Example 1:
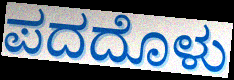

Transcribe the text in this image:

ಪದದೊಳು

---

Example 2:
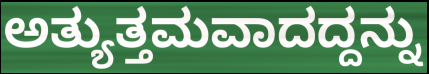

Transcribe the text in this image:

ಅತ್ಯುತ್ತಮವಾದದ್ದನ್ನು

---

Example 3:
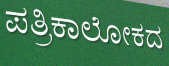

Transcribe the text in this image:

ಪತ್ರಿಕಾಲೋಕದ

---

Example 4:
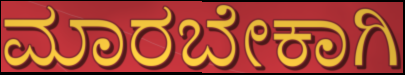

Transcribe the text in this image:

ಮಾರಬೇಕಾಗಿ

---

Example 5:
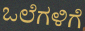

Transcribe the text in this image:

ಒಲೆಗಳಿಗೆ